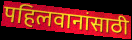
पहिलवानांसाठी